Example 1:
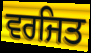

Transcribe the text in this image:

ਵਰਜਿਤ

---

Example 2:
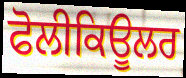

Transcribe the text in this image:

ਫੋਲੀਕਿਊਲਰ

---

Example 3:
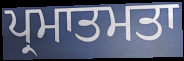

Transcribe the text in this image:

ਪ੍ਰਮਾਤਮਤਾ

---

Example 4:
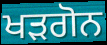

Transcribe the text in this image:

ਖੜਗੋਨ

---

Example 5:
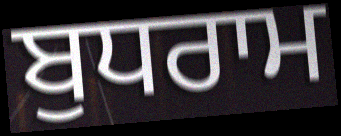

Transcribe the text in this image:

ਬੁਧਰਾਮ